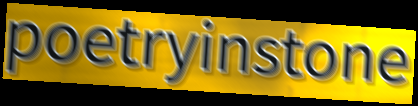
poetryinstone